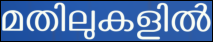
മതിലുകളിൽ